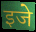
इजे